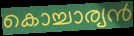
കൊച്ചാര്യൻ